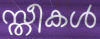
സ്തീകൾ